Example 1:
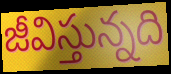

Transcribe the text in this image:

జీవిస్తున్నది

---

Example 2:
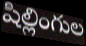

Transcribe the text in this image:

షిల్లింగుల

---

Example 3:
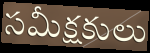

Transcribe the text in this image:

సమీక్షకులు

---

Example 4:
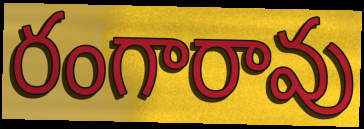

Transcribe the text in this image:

రంగారావు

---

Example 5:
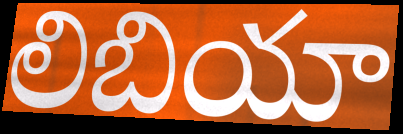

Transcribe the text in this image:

లిబియా